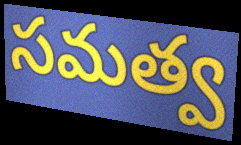
సమత్వ